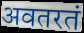
अवतरतं